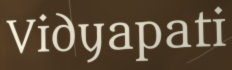
Vidyapati